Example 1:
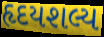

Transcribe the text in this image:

હૃદયશલ્ય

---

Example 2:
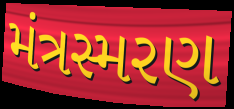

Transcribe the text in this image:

મંત્રસ્મરણ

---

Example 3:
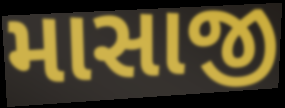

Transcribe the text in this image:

માસાજી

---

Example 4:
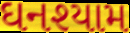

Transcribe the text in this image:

ઘનશ્યામ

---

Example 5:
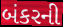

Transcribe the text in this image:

બંકરની